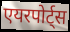
एयरपोर्ट्स